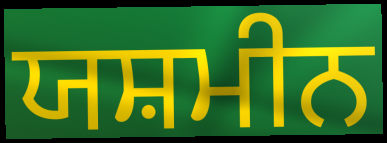
ਯਸ਼ਮੀਨ